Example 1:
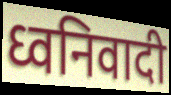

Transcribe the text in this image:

ध्वनिवादी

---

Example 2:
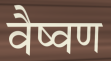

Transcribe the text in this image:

वैष्वण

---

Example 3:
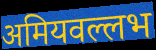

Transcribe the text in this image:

अमियवल्लभ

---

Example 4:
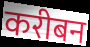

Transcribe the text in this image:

करीबन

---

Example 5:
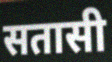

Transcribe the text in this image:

सतासी